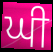
ਘੀ